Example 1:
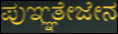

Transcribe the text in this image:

ಪುಞ್ಞತೇಜೇನ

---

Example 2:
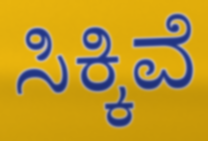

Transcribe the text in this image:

ಸಿಕ್ಕಿವೆ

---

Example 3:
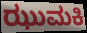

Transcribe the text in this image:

ಝುಮಕಿ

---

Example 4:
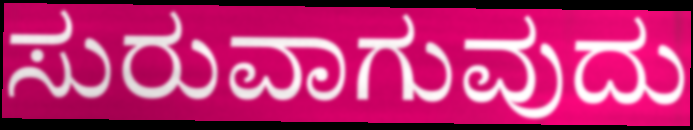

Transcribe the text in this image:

ಸುರುವಾಗುವುದು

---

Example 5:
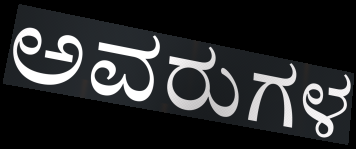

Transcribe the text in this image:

ಅವರುಗಳ